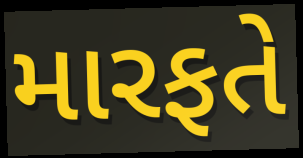
મારફતે